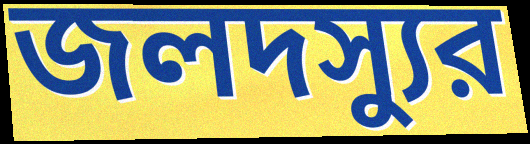
জলদস্যুর